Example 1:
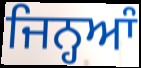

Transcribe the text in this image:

ਜਿਨ੍ਹਆੰ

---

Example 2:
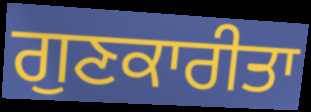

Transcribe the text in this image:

ਗੁਣਕਾਰੀਤਾ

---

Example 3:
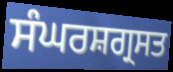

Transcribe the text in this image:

ਸੰਘਰਸ਼ਗ੍ਰਸਤ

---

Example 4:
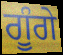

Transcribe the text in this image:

ਗੂੰਗੇ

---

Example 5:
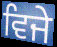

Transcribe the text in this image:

ਵਿਜੇ